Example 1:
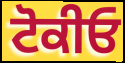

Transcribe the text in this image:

ਟੋਕੀਓ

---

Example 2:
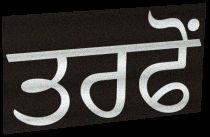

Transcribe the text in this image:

ਤਰਫੋਂ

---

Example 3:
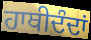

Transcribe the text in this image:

ਹਾਥੀਦੰਦਾਂ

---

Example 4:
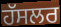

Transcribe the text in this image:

ਹੱਸਲਰ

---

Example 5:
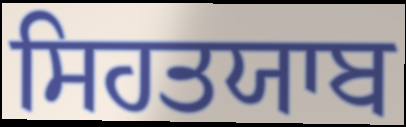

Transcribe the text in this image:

ਸਿਹਤਯਾਬ